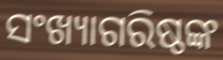
ସଂଖ୍ୟାଗରିଷ୍ଠଙ୍କ